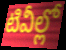
టివీల్లో